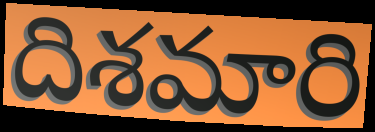
దిశమారి